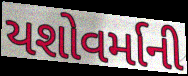
યશોવર્માની